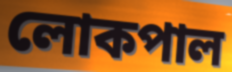
লোকপাল